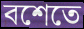
বশেতে